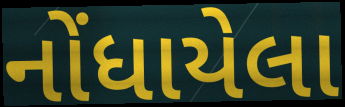
નોંધાયેલા